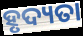
ହୃଦ୍ୟତା